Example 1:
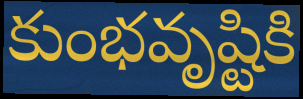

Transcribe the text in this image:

కుంభవృష్టికి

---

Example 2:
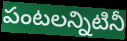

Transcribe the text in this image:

పంటలన్నిటినీ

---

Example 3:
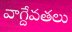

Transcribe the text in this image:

వాగ్దేవతలు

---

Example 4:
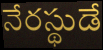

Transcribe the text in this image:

నేరస్థుడే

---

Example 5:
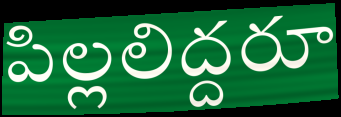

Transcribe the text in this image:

పిల్లలిద్దరూ